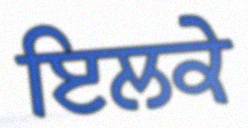
ਇਲਕੇ